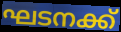
ഘടനക്ക്